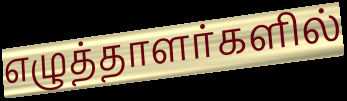
எழுத்தாளர்களில்